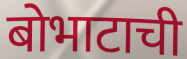
बोभाटाची